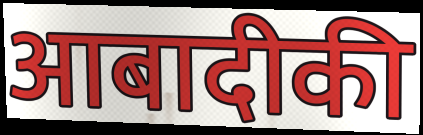
आबादीकी